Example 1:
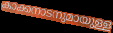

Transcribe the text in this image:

കാക്കനാടനുമായുള്ള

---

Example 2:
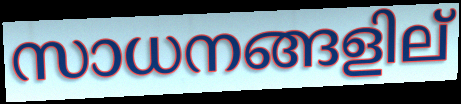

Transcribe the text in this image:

സാധനങ്ങളില്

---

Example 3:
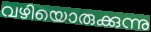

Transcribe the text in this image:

വഴിയൊരുക്കുന്നു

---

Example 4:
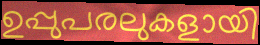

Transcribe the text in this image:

ഉപ്പുപരലുകളായി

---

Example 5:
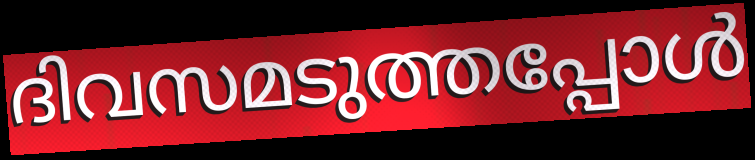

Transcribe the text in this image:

ദിവസമടുത്തപ്പോൾ